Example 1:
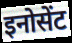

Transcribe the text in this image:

इनोसेंट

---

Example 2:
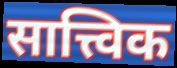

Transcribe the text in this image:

सात्त्विक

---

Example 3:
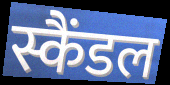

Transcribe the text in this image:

स्कैंडल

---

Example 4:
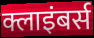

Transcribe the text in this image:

क्लाइंबर्स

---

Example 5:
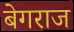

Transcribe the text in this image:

बेगराज